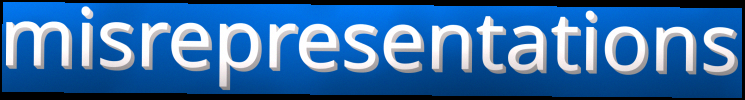
misrepresentations